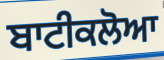
ਬਾਟੀਕਲੋਆ